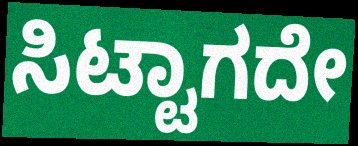
ಸಿಟ್ಟಾಗದೇ